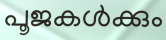
പൂജകൾക്കും